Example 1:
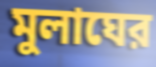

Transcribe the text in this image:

মুলাঘের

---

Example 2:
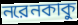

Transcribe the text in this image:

নরেনকাকু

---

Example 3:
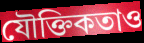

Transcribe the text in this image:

যৌক্তিকতাও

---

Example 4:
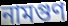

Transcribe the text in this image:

নামগুণ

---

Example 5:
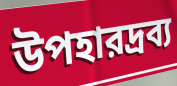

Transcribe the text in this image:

উপহারদ্রব্য